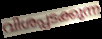
വിശപ്പടക്കുന്ന